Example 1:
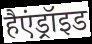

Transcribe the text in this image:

हैएंड्रॉइड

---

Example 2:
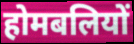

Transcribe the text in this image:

होमबलियों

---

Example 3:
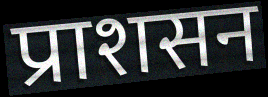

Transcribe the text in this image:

प्राशसन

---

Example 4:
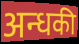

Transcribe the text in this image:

अन्धकी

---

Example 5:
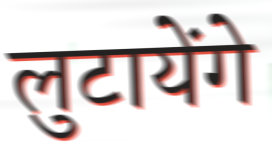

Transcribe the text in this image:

लुटायेंगे